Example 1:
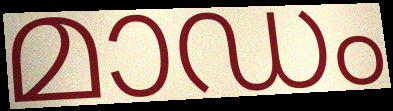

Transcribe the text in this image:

മാഡം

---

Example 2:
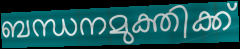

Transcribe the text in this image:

ബന്ധനമുക്തിക്ക്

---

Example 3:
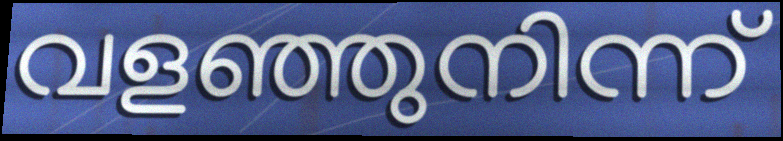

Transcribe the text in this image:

വളഞ്ഞുനിന്ന്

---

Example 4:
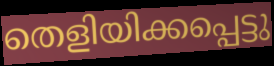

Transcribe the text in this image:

തെളിയിക്കപ്പെട്ടു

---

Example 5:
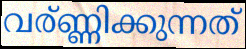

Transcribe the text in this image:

വര്ണ്ണിക്കുന്നത്